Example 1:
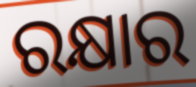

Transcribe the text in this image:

ରକ୍ଷାର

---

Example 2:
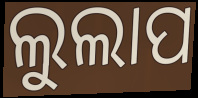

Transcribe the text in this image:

ଲୁଲାପ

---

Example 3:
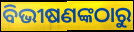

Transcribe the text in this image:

ବିଭୀଷଣଙ୍କଠାରୁ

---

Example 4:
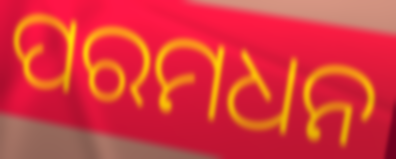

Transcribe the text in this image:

ପରମଧନ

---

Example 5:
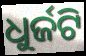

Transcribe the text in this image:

ଧୁର୍ଜଟି